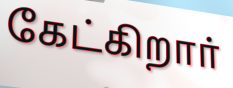
கேட்கிறார்